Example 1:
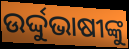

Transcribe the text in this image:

ଉର୍ଦ୍ଦୁଭାଷୀଙ୍କୁ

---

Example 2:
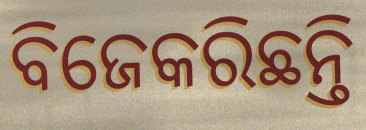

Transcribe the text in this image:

ବିଜେକରିଛନ୍ତି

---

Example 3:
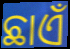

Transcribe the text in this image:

ଛାଏଁ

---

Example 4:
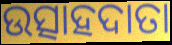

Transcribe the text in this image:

ଉତ୍ସାହଦାତା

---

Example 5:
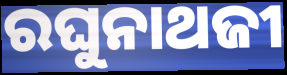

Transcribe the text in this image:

ରଘୁନାଥଜୀ